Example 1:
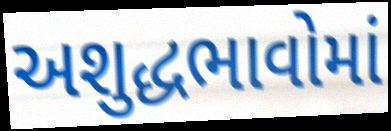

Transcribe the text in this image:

અશુદ્ધભાવોમાં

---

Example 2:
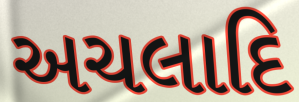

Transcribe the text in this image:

અચલાદિ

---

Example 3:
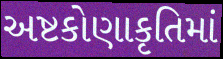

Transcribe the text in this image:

અષ્ટકોણાકૃતિમાં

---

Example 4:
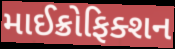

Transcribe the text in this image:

માઈક્રોફિક્શન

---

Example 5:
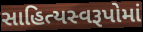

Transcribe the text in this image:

સાહિત્યસ્વરૂપોમાં